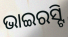
ଭାଇରସ୍ଟି